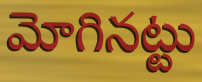
మోగినట్టు